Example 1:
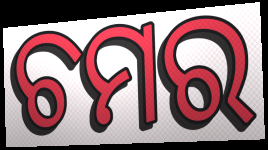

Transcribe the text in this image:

ଚମର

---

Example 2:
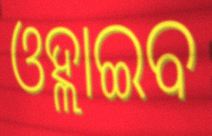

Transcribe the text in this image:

ଓହ୍ଲାଇବ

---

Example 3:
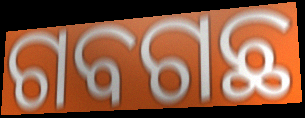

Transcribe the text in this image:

ଗବଗଛ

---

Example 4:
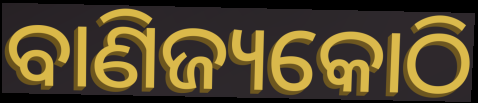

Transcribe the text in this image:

ବାଣିଜ୍ୟକୋଠି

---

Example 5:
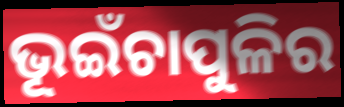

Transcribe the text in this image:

ଭୂଇଁଚାପୁଳିର